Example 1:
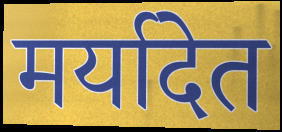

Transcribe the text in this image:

मर्यादेत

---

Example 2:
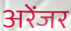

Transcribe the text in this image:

अरेंजर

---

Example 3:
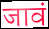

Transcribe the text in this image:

जावं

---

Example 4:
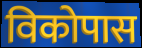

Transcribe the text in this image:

विकोपास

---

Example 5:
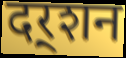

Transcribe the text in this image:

दर्शन